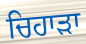
ਚਿਹਾੜਾ